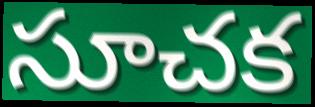
సూచక